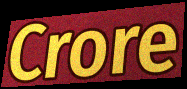
Crore